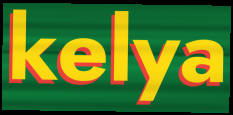
kelya